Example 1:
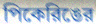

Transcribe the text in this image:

পিকেরিঙের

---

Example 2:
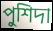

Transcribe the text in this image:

পুশিদা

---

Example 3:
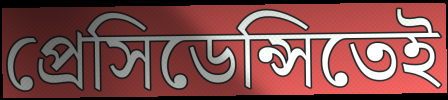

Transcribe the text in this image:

প্রেসিডেন্সিতেই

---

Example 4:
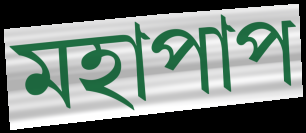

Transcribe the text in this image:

মহাপাপ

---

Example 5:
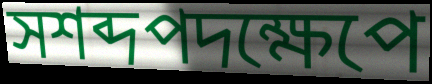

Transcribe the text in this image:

সশব্দপদক্ষেপে